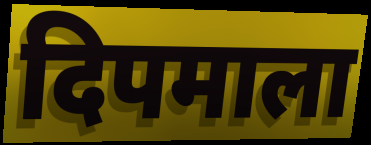
दिपमाला